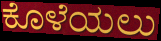
ಕೊಳೆಯಲು